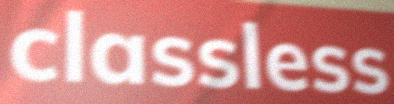
classless